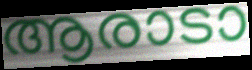
ആരാടാ